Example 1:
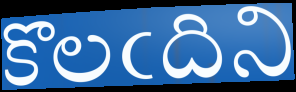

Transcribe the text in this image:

కొలఁదిని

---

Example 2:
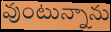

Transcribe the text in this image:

వుంటున్నాను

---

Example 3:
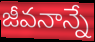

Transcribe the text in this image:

జీవనాన్నే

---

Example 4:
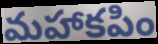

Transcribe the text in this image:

మహాకపిం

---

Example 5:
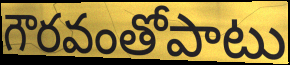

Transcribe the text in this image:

గౌరవంతోపాటు